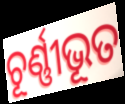
ଚୂର୍ଣ୍ଣୀଭୂତ